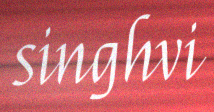
singhvi